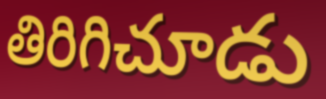
తిరిగిచూడు